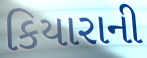
કિયારાની